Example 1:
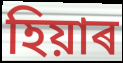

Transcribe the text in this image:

হিয়াৰ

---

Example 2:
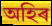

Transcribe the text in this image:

অহিৰ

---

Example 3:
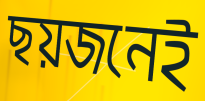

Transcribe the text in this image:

ছয়জনেই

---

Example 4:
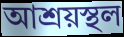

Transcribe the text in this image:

আশ্ৰয়স্থল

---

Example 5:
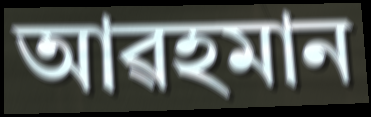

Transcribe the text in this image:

আৱহমান